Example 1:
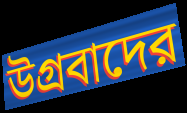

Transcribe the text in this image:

উগ্রবাদের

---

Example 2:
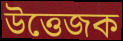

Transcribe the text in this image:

উত্তেজক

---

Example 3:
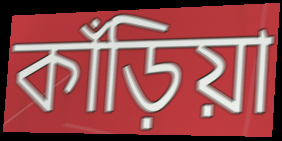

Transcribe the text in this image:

কাঁড়িয়া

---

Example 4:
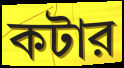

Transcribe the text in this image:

কটার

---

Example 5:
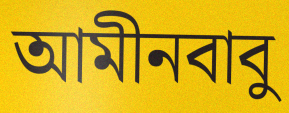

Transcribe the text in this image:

আমীনবাবু